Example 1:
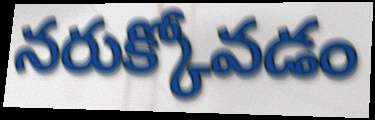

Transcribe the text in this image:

నరుక్కోవడం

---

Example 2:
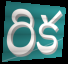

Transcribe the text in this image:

రిక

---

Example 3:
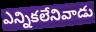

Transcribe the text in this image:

ఎన్నికలేనివాడు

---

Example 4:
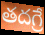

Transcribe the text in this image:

తదగ్రే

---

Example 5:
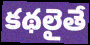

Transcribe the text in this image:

కథలైతే